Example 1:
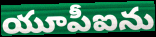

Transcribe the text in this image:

యూపీఐను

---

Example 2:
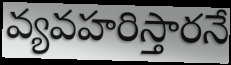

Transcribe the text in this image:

వ్యవహరిస్తారనే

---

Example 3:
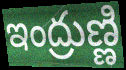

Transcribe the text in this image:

ఇంద్రుణ్ణి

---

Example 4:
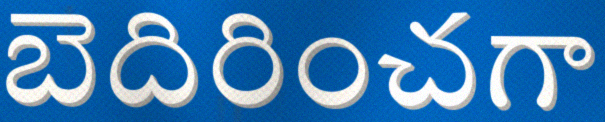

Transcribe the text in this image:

బెదిరించగా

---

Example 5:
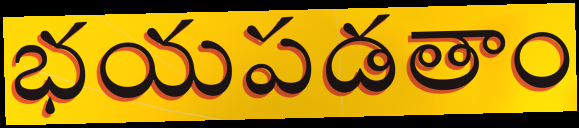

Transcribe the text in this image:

భయపడతాం